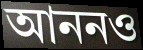
আননও